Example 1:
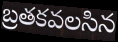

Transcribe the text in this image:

బ్రతకవలసిన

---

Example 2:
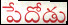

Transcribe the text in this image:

పేదోడు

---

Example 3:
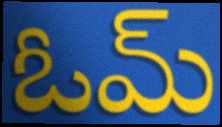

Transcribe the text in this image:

ఓమ్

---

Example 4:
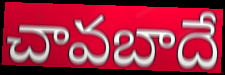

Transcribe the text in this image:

చావబాదే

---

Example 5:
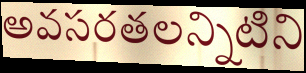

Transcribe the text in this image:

అవసరతలన్నిటిని